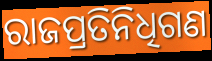
ରାଜପ୍ରତିନିଧିଗଣ